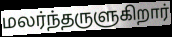
மலர்ந்தருளுகிறார்